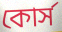
কোর্স